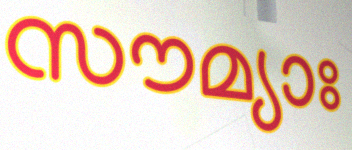
സൗമ്യാഃ